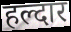
हल्दार